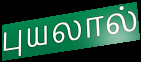
புயலால்